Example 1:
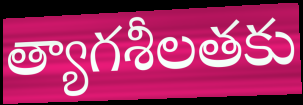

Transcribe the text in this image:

త్యాగశీలతకు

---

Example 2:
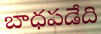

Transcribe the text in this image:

బాధపడేది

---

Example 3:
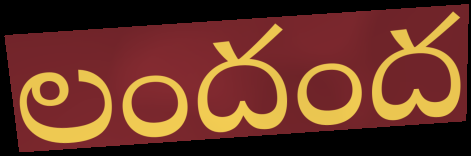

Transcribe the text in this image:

లందంద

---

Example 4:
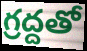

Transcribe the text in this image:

గ్రద్దతో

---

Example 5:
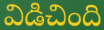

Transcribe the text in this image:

విడిచింది